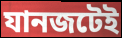
যানজটেই